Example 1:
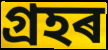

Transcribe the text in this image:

গ্ৰহৰ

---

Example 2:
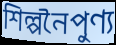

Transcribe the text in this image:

শিল্পনৈপুণ্য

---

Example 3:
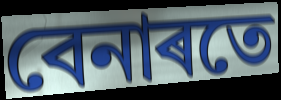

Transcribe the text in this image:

বেনাৰতে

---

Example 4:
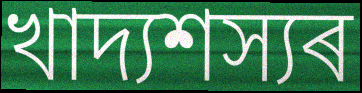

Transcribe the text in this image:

খাদ্যশস্যৰ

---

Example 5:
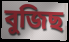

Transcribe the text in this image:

বুজিছ